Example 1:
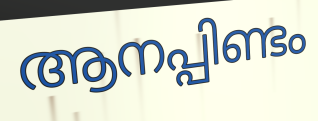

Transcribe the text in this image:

ആനപ്പിണ്ടം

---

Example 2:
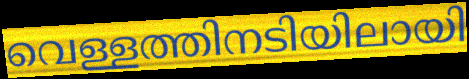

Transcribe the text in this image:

വെള്ളത്തിനടിയിലായി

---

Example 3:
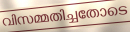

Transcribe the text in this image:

വിസമ്മതിച്ചതോടെ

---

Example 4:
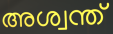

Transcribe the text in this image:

അശ്വന്ത്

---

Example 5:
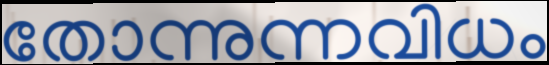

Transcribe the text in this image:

തോന്നുന്നവിധം